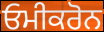
ਓਮੀਕਰੋਨ